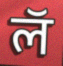
लॅ